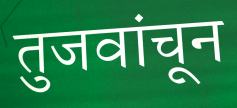
तुजवांचून